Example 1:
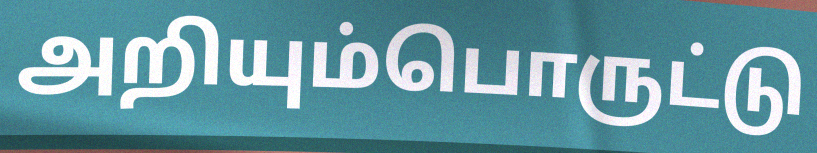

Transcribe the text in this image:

அறியும்பொருட்டு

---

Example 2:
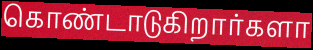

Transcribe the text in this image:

கொண்டாடுகிறார்களா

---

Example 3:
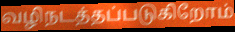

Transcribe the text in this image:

வழிநடத்தப்படுகிறோம்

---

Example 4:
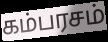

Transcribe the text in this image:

கம்பரசம்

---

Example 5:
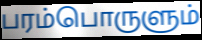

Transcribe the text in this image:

பரம்பொருளும்